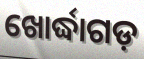
ଖୋର୍ଦ୍ଧାଗଡ଼